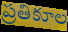
ప్రతికూల